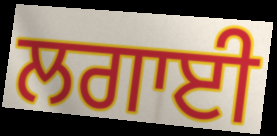
ਲਗਾਈ